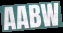
AABW